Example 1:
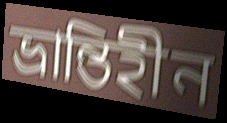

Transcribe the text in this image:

ভ্রান্তিহীন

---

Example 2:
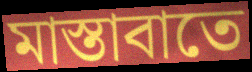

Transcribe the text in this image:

মাস্তাবাতে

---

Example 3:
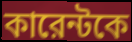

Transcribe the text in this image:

কারেন্টকে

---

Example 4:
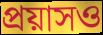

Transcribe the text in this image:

প্রয়াসও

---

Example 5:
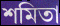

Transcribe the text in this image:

শমিতা